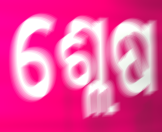
ଶ୍ଲେଷ